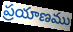
ప్రయాణము